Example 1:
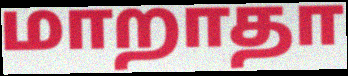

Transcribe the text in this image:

மாறாதா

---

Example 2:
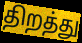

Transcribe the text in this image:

திறத்து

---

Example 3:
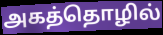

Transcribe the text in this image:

அகத்தொழில்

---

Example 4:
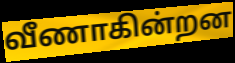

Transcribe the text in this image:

வீணாகின்றன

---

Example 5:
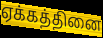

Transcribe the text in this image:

ஏக்கத்தினை